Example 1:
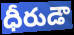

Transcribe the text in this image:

ధీరుడౌ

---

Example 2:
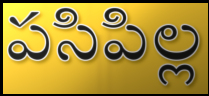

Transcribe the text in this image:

పసిపిల్ల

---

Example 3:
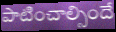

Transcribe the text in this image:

పాటించాల్సిందే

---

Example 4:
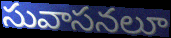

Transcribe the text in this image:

సువాసనలూ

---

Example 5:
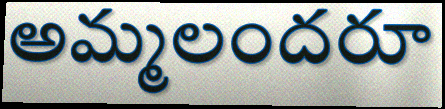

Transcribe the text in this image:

అమ్మలందరూ